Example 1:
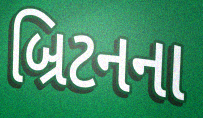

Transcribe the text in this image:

બ્રિટનના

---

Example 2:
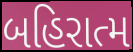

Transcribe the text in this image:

બહિરાત્મ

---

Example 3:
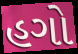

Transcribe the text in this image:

હગો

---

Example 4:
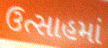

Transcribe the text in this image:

ઉત્સાહમાં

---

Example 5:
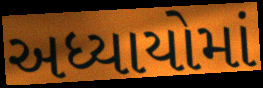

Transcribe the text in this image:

અધ્યાયોમાં